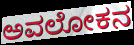
ಅವಲೋಕನ